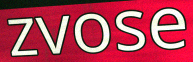
zvose